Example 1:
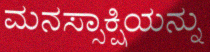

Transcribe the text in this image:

ಮನಸ್ಸಾಕ್ಷಿಯನ್ನು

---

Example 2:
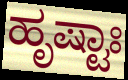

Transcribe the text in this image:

ಹೃಷ್ಟಾಃ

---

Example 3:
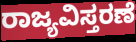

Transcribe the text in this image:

ರಾಜ್ಯವಿಸ್ತರಣೆ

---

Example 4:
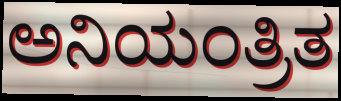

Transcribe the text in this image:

ಅನಿಯಂತ್ರಿತ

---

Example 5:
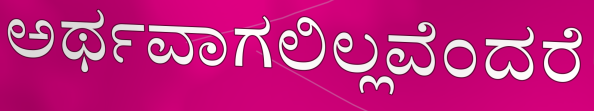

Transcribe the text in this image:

ಅರ್ಥವಾಗಲಿಲ್ಲವೆಂದರೆ